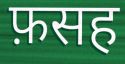
फ़सह